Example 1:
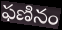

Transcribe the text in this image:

ఫణినం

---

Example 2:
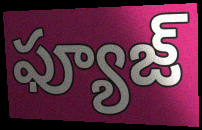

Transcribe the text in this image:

ఫ్యూజ్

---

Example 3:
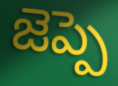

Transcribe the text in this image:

జెప్పె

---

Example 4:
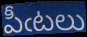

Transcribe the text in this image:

పీఁటలు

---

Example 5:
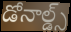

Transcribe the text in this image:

డోనాల్డ్స్